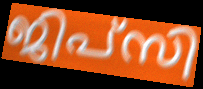
ജിപ്സി